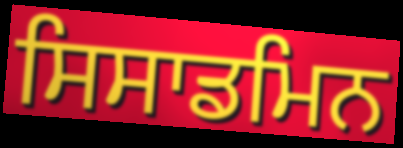
ਸਿਸਾਡਮਿਨ